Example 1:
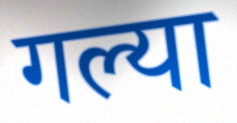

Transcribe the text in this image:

गल्या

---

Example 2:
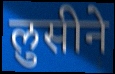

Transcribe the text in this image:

लुसीने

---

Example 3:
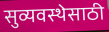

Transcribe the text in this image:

सुव्यवस्थेसाठी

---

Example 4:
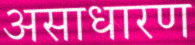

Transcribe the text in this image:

असाधारण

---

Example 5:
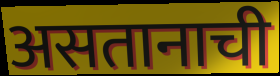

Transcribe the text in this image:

असतानाची